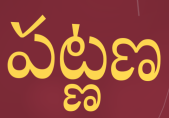
పట్ణణ